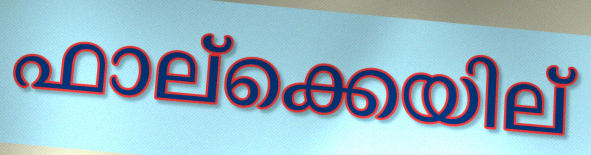
ഫാല്ക്കെയില്